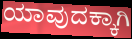
ಯಾವುದಕ್ಕಾಗಿ